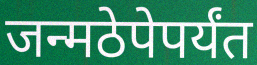
जन्मठेपेपर्यंत